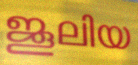
ജൂലിയ